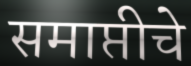
समाप्तीचे